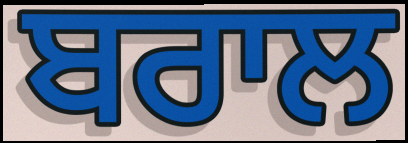
ਬਰਾਲ